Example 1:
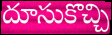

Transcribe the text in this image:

దూసుకొచ్చి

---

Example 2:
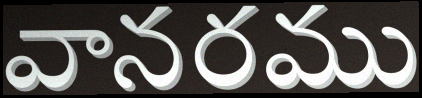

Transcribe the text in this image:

వానరము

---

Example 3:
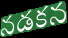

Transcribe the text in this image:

నడకన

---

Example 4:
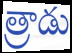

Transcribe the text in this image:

త్రాడు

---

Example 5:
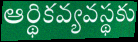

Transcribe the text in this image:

ఆర్థికవ్యవస్థకు